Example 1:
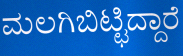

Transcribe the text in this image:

ಮಲಗಿಬಿಟ್ಟಿದ್ದಾರೆ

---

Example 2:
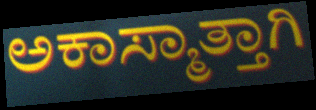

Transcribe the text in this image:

ಅಕಾಸ್ಮಾತ್ತಾಗಿ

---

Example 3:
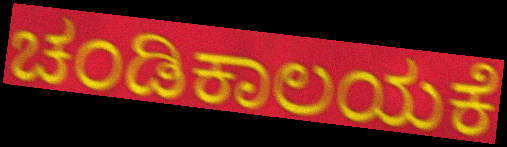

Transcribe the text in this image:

ಚಂಡಿಕಾಲಯಕೆ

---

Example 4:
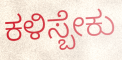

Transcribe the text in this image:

ಕಳಿಸ್ಬೇಕು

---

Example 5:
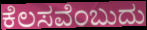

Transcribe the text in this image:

ಕೆಲಸವೆಂಬುದು